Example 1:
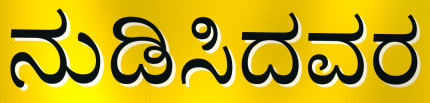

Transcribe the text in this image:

ನುಡಿಸಿದವರ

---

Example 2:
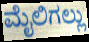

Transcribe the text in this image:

ಮೈಲಿಗಲ್ಲು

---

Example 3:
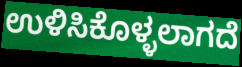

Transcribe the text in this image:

ಉಳಿಸಿಕೊಳ್ಳಲಾಗದೆ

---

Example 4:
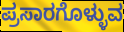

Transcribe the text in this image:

ಪ್ರಸಾರಗೊಳ್ಳುವ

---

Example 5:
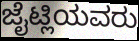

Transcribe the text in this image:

ಜೈಟ್ಲಿಯವರು